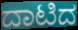
ದಾಟಿದ